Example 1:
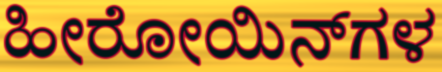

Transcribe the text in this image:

ಹೀರೋಯಿನ್‌ಗಳ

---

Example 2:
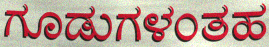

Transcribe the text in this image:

ಗೂಡುಗಳಂತಹ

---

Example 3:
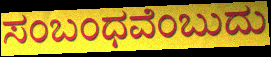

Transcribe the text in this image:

ಸಂಬಂಧವೆಂಬುದು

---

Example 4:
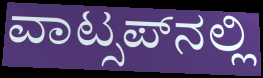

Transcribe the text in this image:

ವಾಟ್ಸಪ್‍ನಲ್ಲಿ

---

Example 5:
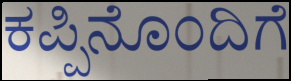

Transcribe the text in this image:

ಕಪ್ಪಿನೊಂದಿಗೆ